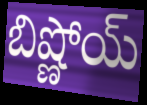
బిష్ణోయ్